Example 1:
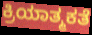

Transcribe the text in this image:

ಕ್ರಿಯಾತ್ಮಕತೆ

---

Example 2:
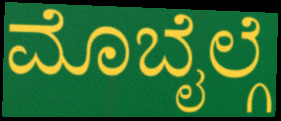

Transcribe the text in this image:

ಮೊಬೈಲ್ಗೆ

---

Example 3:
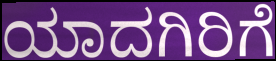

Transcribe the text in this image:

ಯಾದಗಿರಿಗೆ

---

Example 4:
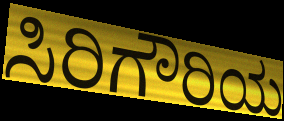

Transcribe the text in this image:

ಸಿರಿಗೌರಿಯ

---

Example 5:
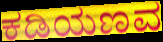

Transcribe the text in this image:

ಕಡಿಯಣವ